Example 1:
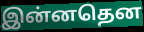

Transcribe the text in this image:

இன்னதென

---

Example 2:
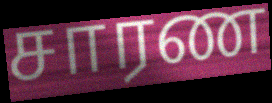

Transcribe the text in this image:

சாரண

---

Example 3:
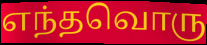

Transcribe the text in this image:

எந்தவொரு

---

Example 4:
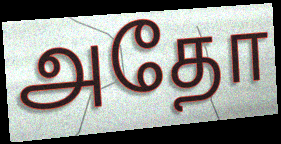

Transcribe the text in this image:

அதோ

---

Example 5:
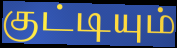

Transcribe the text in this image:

குட்டியும்